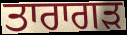
ਤਾਰਾਗੜ